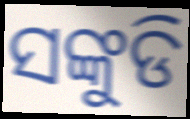
ସଙ୍କୁଡି